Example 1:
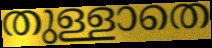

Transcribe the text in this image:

തുള്ളാതെ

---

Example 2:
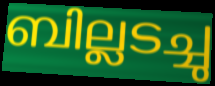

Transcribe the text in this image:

ബില്ലടച്ചു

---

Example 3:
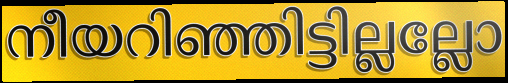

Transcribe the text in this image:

നീയറിഞ്ഞിട്ടില്ലല്ലോ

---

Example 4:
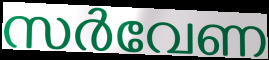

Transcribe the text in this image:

സർവേണ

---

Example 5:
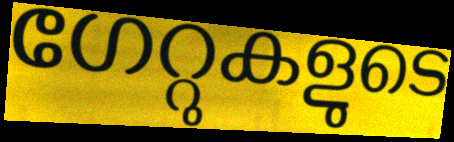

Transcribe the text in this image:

ഗേറ്റുകളുടെ